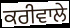
ਕਰੀਵਾਲੇ